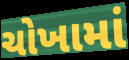
ચોખામાં